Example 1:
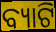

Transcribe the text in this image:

ବ୍ୟାଟି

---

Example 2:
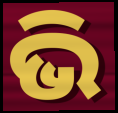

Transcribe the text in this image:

ଭି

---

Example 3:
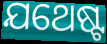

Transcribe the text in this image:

ଯଥେଷ୍ଟ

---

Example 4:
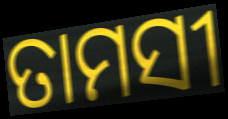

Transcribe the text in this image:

ତାମସୀ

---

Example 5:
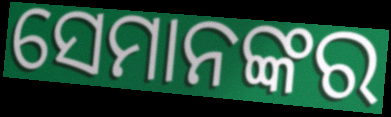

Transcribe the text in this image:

ସେମାନଙ୍କର